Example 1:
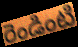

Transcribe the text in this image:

రెండింటి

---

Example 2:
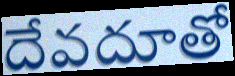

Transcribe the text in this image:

దేవదూతో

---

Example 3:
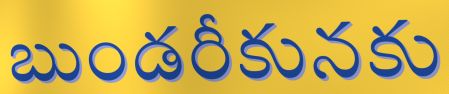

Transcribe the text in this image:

బుండరీకునకు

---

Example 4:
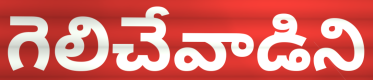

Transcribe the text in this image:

గెలిచేవాడిని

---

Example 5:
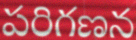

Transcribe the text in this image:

పరిగణన